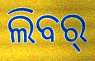
ଲିବର୍